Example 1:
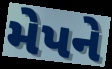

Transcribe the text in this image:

મેપને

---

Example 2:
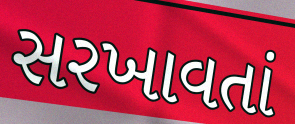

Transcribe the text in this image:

સરખાવતાં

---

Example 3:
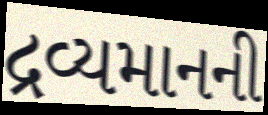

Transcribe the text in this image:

દ્રવ્યમાનની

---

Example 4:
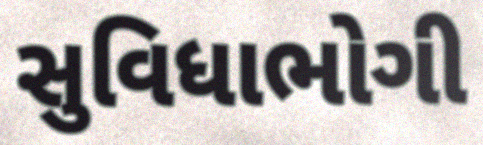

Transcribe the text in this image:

સુવિધાભોગી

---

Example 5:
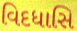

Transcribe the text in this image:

વિદધાસિ